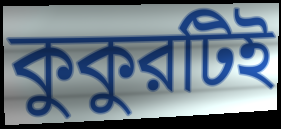
কুকুরটিই